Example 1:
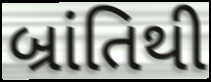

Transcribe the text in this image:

બ્રાંતિથી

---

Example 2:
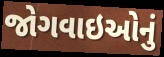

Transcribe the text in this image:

જોગવાઇઓનું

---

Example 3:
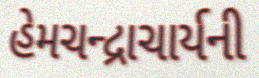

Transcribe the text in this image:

હેમચન્દ્રાચાર્યની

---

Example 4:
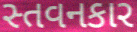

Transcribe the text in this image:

સ્તવનકાર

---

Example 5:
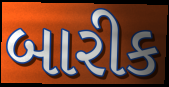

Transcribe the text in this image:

બારીક